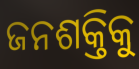
ଜନଶକ୍ତିକୁ